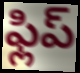
ఫ్లిప్